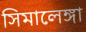
সিমালেঙ্গা